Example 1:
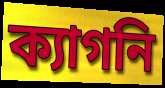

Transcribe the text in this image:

ক্যাগনি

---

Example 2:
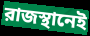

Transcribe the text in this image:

রাজস্থানেই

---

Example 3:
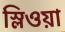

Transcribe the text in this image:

স্লিওয়া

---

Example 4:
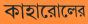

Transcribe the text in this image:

কাহারোলের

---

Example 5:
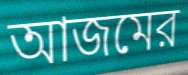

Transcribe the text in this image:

আজমের